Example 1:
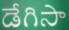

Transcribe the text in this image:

డేగిసా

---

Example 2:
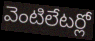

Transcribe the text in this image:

వెంటిలేటర్లో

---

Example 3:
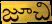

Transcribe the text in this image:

జూచి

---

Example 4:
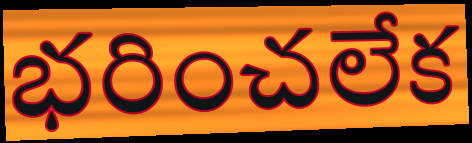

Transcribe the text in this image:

భరించలేక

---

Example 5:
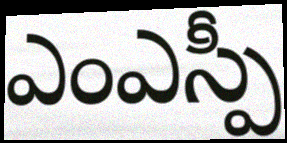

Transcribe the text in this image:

ఎంఎస్పీ